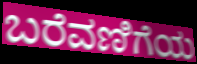
ಬರೆವಣಿಗೆಯ